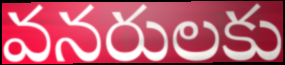
వనరులకు